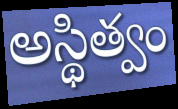
అస్థిత్వం